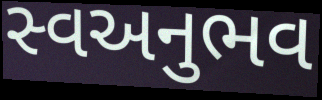
સ્વઅનુભવ